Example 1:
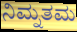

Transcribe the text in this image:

ನಿಮ್ನತಮ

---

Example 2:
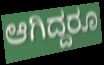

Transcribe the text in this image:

ಆಗಿದ್ದರೂ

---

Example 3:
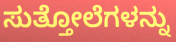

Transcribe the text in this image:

ಸುತ್ತೋಲೆಗಳನ್ನು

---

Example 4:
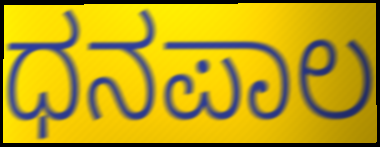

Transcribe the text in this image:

ಧನಪಾಲ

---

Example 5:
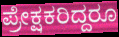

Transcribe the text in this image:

ಪ್ರೇಕ್ಷಕರಿದ್ದರೂ